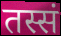
तस्सं